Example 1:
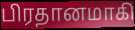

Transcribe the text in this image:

பிரதானமாகி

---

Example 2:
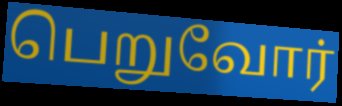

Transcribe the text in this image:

பெறுவோர்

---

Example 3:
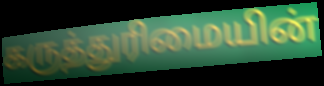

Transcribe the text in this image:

கருத்துரிமையின்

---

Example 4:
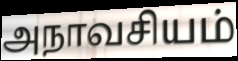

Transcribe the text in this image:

அநாவசியம்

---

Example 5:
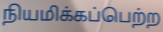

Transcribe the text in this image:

நியமிக்கப்பெற்ற